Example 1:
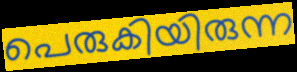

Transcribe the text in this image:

പെരുകിയിരുന്ന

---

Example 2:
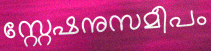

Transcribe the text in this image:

സ്റ്റേഷനുസമീപം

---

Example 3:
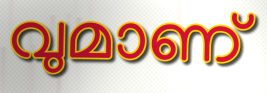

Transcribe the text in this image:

വുമാണ്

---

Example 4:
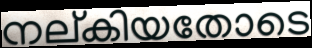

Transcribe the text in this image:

നല്കിയതോടെ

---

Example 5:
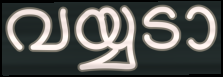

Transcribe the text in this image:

വയ്യടാ